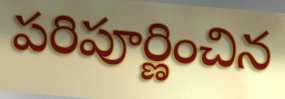
పరిపూర్ణించిన